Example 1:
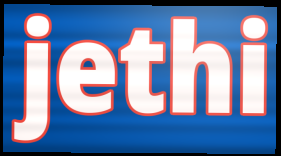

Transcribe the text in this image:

jethi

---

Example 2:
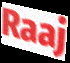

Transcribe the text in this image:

Raaj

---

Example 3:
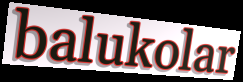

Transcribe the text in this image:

balukolar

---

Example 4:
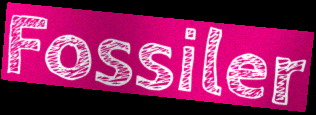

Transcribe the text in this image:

Fossiler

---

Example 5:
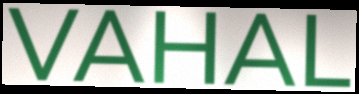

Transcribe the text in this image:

VAHAL